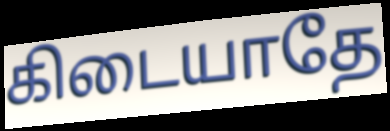
கிடையாதே